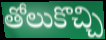
తోలుకొచ్చి